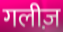
गलीज़